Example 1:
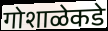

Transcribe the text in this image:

गोशाळेकडे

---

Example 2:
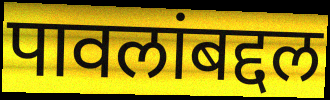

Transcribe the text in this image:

पावलांबद्दल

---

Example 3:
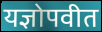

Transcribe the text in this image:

यज्ञोपवीत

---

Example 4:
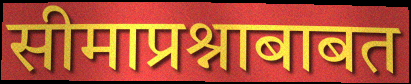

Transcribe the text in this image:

सीमाप्रश्नाबाबत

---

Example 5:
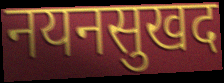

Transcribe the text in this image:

नयनसुखद